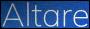
Altare